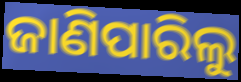
ଜାଣିପାରିଲୁ